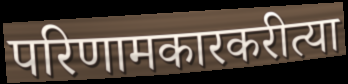
परिणामकारकरीत्या